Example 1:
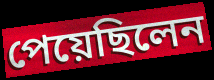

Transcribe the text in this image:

পেয়েছিলেন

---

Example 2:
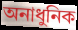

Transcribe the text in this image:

অনাধুনিক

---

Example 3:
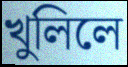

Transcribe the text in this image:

খুলিলে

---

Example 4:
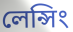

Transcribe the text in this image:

লেন্সিং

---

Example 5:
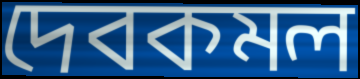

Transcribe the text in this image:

দেবকমল